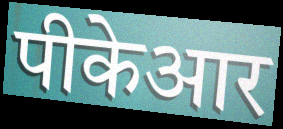
पीकेआर